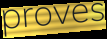
proves